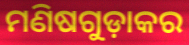
ମଣିଷଗୁଡ଼ାକର